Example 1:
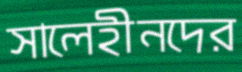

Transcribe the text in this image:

সালেহীনদের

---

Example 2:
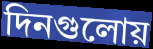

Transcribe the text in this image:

দিনগুলোয়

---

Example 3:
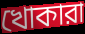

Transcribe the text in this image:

খোকারা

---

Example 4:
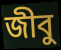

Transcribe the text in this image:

জীবু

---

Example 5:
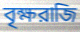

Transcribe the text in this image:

বৃক্ষরাজি